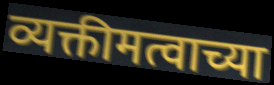
व्यक्तीमत्वाच्या